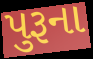
પુરૂના